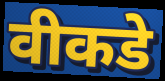
वीकडे